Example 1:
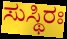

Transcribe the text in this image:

ಸುಸ್ಥಿರಃ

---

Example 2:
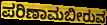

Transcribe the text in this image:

ಪರಿಣಾಮಬೀರುವ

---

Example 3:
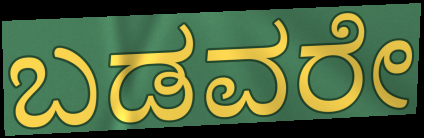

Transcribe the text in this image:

ಬಡವರೇ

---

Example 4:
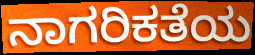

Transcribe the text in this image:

ನಾಗರಿಕತೆಯ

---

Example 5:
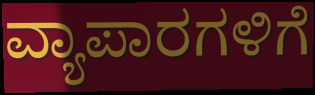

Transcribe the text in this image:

ವ್ಯಾಪಾರಗಳಿಗೆ